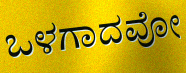
ಒಳಗಾದವೋ